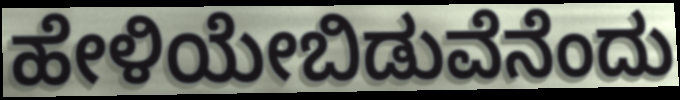
ಹೇಳಿಯೇಬಿಡುವೆನೆಂದು